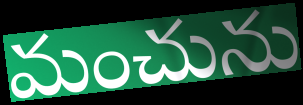
మంచును